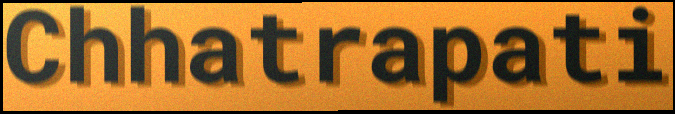
Chhatrapati